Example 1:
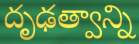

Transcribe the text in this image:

దృఢత్వాన్ని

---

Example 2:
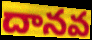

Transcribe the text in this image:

దానవ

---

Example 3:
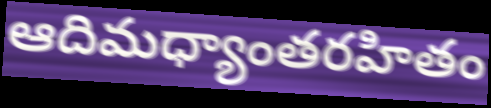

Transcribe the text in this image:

ఆదిమధ్యాంతరహితం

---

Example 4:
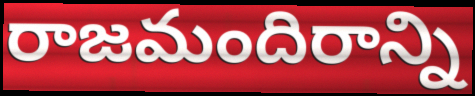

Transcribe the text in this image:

రాజమందిరాన్ని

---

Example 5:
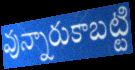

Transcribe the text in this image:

వున్నారుకాబట్టి